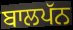
ਬਾਲਪੱਨ